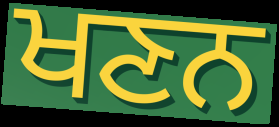
ਖਣਨ